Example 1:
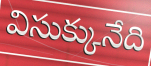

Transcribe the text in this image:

విసుక్కునేది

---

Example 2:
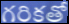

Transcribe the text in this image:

గరికతో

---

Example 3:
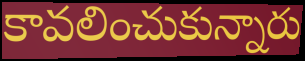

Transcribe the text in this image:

కావలించుకున్నారు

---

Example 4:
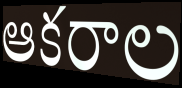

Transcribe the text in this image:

ఆకరాల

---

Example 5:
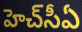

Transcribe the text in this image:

హెచ్‌సీఏ